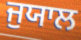
ਜੁਯਾਲ